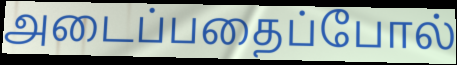
அடைப்பதைப்போல்